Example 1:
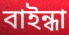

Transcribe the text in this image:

বাইন্ধা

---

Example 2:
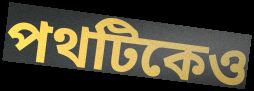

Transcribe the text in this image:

পথটিকেও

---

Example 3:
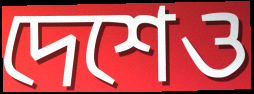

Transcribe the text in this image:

দেশেও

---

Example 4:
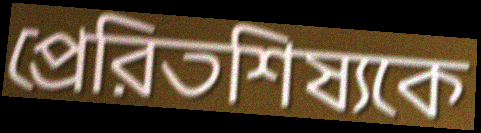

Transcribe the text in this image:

প্রেরিতশিষ্যকে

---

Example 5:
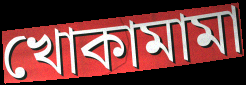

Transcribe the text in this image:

খোকামামা